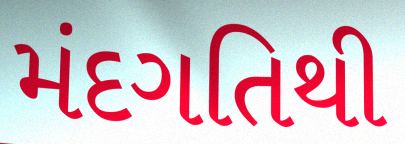
મંદગતિથી